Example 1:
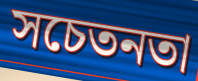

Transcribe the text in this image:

সচেতনতা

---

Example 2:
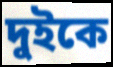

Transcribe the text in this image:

দুইকে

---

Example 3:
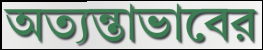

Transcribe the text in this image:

অত্যন্তাভাবের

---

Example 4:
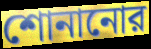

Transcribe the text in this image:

শোনানোর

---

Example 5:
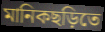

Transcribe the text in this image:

মানিকছড়িতে